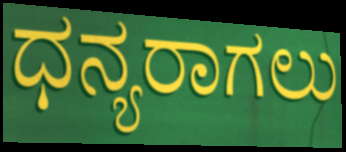
ಧನ್ಯರಾಗಲು